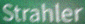
Strahler